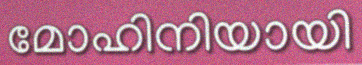
മോഹിനിയായി